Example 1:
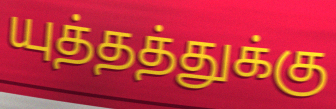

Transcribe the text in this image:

யுத்தத்துக்கு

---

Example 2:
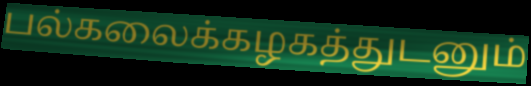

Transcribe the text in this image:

பல்கலைக்கழகத்துடனும்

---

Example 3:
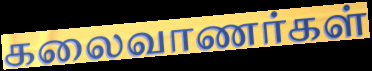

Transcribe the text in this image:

கலைவாணர்கள்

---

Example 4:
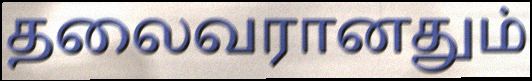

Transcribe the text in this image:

தலைவரானதும்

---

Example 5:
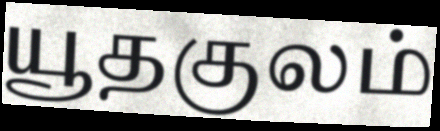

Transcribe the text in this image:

யூதகுலம்